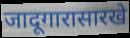
जादूगारासारखे